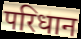
परिधान